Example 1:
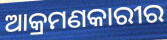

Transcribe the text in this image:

ଆକ୍ରମଣକାରୀର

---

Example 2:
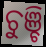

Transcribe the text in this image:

ଚୁଞ୍ଚି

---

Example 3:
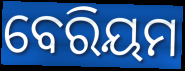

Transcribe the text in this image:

ବେରିୟମ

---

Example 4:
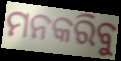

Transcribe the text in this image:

ମନକରିବୁ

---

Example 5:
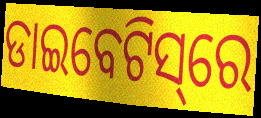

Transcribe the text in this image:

ଡାଇବେଟିସ୍‌ରେ